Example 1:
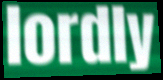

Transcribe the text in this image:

lordly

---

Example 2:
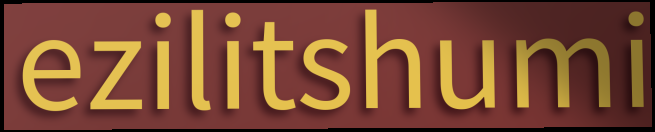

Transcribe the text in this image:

ezilitshumi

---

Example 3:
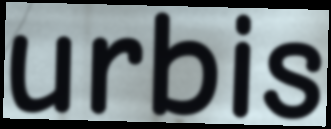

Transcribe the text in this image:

urbis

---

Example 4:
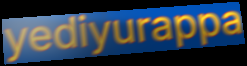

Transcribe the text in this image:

yediyurappa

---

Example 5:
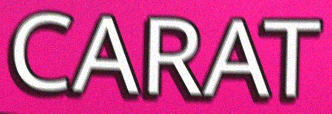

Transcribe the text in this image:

CARAT